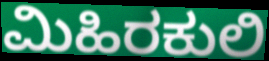
ಮಿಹಿರಕುಲಿ